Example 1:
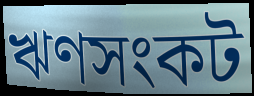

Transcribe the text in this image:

ঋণসংকট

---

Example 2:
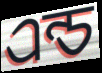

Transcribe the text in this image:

এন্ড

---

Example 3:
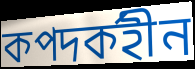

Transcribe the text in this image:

কপদর্কহীন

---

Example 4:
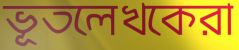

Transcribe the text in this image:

ভূতলেখকেরা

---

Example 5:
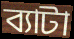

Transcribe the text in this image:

ব্যাটা